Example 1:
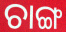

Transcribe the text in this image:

ଚାଙ୍ଗ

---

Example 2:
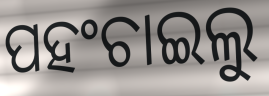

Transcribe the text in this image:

ପହଂଚାଇଲୁ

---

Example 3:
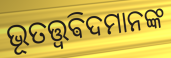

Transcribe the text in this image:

ଭୂତତ୍ତ୍ୱଵିଦମାନଙ୍କ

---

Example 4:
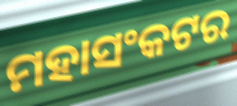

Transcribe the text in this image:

ମହାସଂକଟର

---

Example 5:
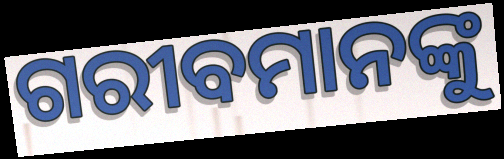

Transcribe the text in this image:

ଗରୀବମାନଙ୍କୁ